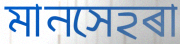
মানসেহৰা